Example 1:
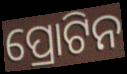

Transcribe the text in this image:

ପ୍ରୋଟିନ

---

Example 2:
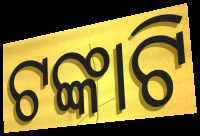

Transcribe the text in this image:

ଟଙ୍କାଟି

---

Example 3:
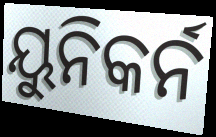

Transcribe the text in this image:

ୟୁନିକର୍ନ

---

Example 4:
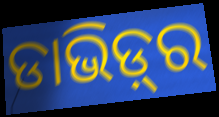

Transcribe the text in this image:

ଡାଭିଡ଼୍‍ର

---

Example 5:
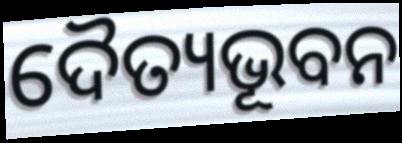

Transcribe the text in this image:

ଦୈତ୍ୟଭୂବନ